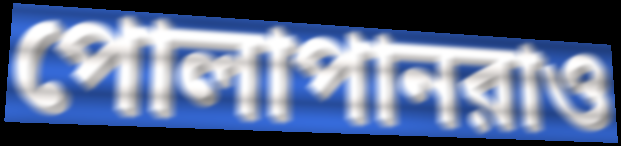
পোলাপানরাও